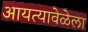
आयत्यावेळेला